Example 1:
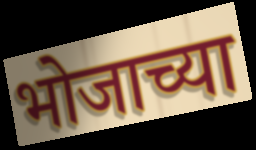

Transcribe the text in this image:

भोजाच्या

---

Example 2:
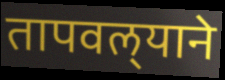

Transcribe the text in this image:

तापवल्याने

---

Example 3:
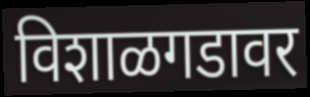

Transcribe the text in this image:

विशाळगडावर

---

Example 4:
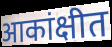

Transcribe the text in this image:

आकांक्षीत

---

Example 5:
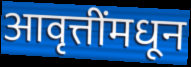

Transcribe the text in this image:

आवृत्तींमधून